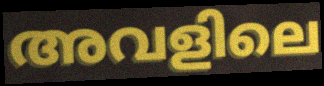
അവളിലെ